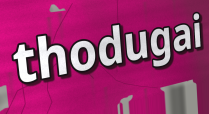
thodugai